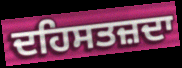
ਦਹਿਸਤਜ਼ਦਾ